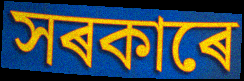
সৰকাৰে